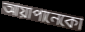
আয়াপানেকো